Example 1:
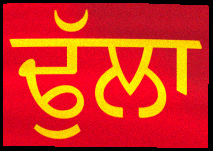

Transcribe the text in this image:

ਢੁੱਲਾ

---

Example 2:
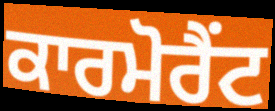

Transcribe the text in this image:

ਕਾਰਮੋਰੈਂਟ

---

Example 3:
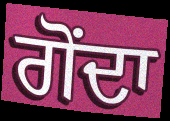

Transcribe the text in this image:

ਗੋਂਦਾ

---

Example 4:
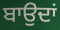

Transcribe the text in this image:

ਬਾਉਦਾਂ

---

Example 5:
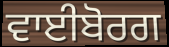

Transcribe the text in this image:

ਵਾਈਬੋਰਗ